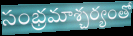
సంభ్రమాశ్చర్యంతో